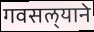
गवसल्याने